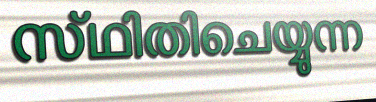
സ്‌ഥിതിചെയ്യുന്ന